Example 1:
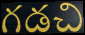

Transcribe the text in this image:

గడచి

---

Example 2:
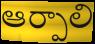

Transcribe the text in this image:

ఆర్పాలి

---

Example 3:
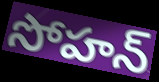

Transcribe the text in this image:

సోహన్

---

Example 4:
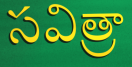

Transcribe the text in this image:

సవిత్రా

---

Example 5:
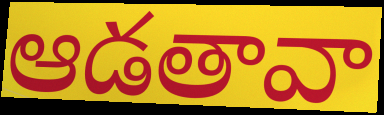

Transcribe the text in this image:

ఆడతావా